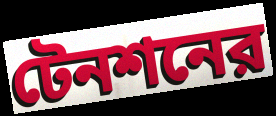
টেনশনের